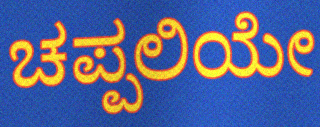
ಚಪ್ಪಲಿಯೇ